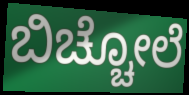
ಬಿಚ್ಚೋಲೆ